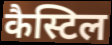
कैस्टिल